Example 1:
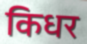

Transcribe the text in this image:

किधर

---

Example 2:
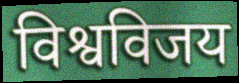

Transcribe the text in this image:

विश्वविजय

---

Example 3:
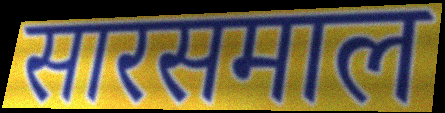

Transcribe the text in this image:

सारसमाल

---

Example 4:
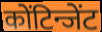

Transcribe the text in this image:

कोंटिन्जेंट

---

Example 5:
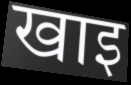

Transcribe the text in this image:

खाइ